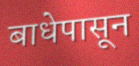
बाधेपासून